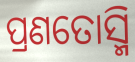
ପ୍ରଣତୋସ୍ମି